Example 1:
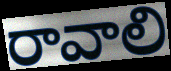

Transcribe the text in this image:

రావాలి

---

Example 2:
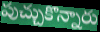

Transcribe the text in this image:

పుచ్చుకొన్నారు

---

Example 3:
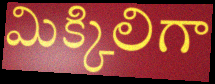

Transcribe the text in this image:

మిక్కిలిగా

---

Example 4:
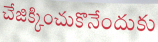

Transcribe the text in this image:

చేజిక్కించుకొనేందుకు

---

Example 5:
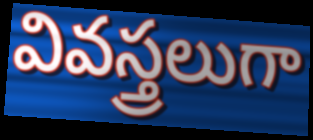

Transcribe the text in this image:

వివస్త్రలుగా